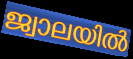
ജ്വാലയിൽ